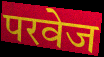
परवेज